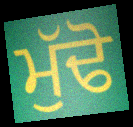
ਮੁੱਢੋ